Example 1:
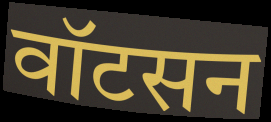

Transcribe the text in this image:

वॉटसन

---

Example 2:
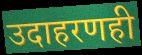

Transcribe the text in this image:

उदाहरणही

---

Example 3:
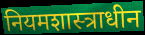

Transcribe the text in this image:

नियमशास्त्राधीन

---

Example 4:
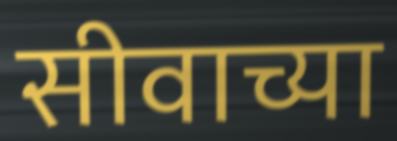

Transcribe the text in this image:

सीवाच्या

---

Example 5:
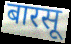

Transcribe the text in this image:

बारसू